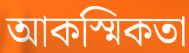
আকস্মিকতা